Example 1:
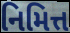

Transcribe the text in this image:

નિમિત્ત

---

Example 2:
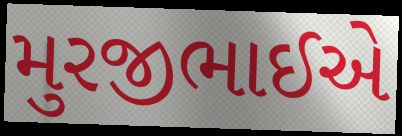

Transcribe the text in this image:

મુરજીભાઈએ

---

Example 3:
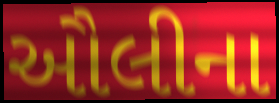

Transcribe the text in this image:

ઔલીના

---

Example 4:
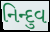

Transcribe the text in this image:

નિન્દુવ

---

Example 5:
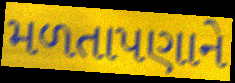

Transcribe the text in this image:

મળતાપણાને